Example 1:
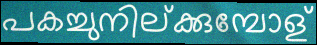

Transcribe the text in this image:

പകച്ചുനില്ക്കുമ്പോള്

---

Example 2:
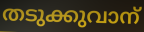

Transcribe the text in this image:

തടുക്കുവാന്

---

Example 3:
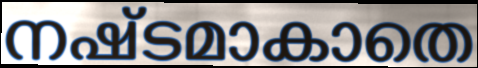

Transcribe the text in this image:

നഷ്‌ടമാകാതെ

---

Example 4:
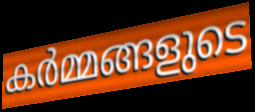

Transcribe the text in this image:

കർമ്മങ്ങളുടെ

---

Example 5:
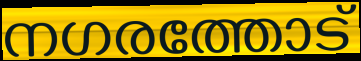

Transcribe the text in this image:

നഗരത്തോട്